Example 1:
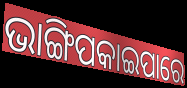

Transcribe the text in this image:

ଭାଙ୍ଗିପକାଇପାରେ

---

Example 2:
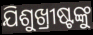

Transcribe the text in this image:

ଯିଶୁଖ୍ରୀଷ୍ଟଙ୍କୁ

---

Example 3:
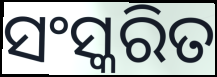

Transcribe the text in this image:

ସଂସ୍କରିତ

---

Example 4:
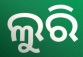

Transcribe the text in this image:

ଲୁରି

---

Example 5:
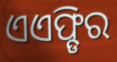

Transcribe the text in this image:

ଏଏଫ୍ଡିର